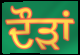
ਦੌੜਾਂ